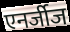
एनर्जीज